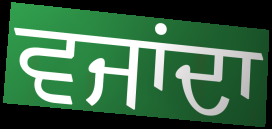
ਵਜਾਂਦਾ